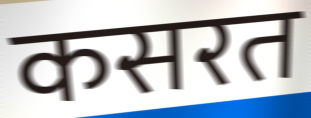
कसरत